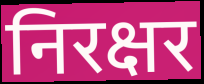
निरक्षर